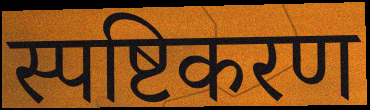
स्पष्टिकरण